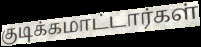
குடிக்கமாட்டார்கள்